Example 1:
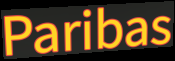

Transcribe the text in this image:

Paribas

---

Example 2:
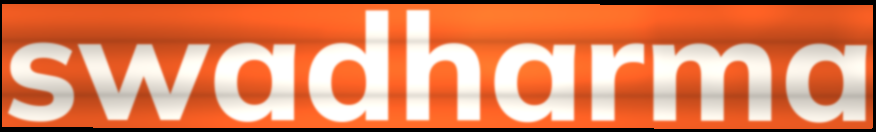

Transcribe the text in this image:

swadharma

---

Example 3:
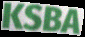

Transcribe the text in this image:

KSBA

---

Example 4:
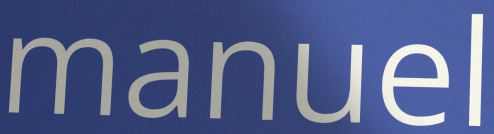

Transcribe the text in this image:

manuel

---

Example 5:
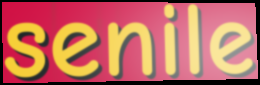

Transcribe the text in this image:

senile